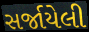
સર્જાયેલી